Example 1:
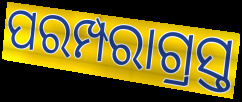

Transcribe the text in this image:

ପରମ୍ପରାଗ୍ରସ୍ତ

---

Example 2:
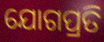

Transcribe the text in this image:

ଯୋଗପ୍ରତି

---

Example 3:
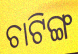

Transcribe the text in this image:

ଚାଟିଙ୍ଗ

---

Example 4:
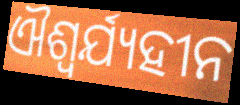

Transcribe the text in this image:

ଐଶ୍ୱର୍ଯ୍ୟହୀନ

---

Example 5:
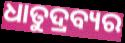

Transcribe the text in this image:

ଧାତୁଦ୍ରବ୍ୟର